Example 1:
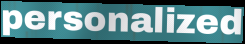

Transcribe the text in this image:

personalized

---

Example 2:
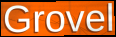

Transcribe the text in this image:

Grovel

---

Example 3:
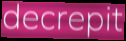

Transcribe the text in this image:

decrepit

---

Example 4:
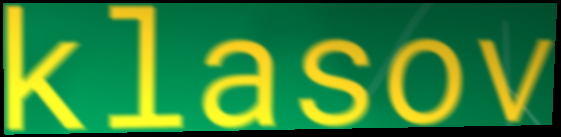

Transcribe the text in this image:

klasov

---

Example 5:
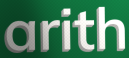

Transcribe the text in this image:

arith